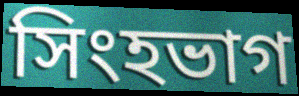
সিংহভাগ